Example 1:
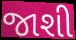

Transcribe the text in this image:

જાશી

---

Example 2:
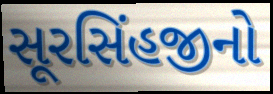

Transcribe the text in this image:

સૂરસિંહજીનો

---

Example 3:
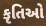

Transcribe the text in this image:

કૃતિઓ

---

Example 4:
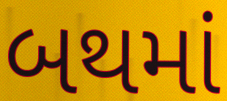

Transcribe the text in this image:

બથમાં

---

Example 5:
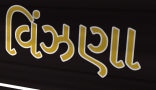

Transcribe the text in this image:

વિંઝણા